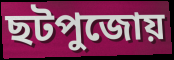
ছটপুজোয়